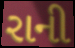
રાની